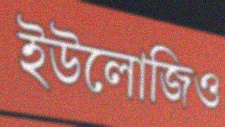
ইউলোজিও